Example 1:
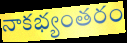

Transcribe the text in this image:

నాకభ్యంతరం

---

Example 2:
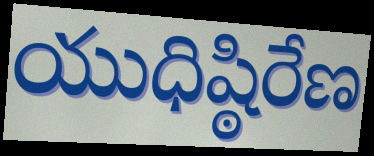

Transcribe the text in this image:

యుధిష్ఠిరేణ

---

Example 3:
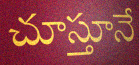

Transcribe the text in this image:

చూస్తూనే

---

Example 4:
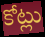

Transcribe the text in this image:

కోట్లు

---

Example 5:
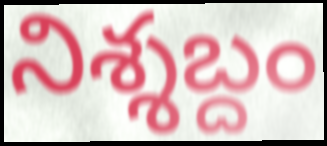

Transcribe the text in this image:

నిశ్శబ్దం